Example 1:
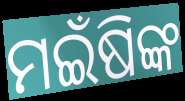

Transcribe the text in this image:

ମଇଁଷିଙ୍କ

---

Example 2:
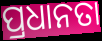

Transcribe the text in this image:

ପ୍ରଧାନତା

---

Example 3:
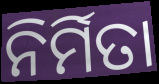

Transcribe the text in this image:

ନିର୍ମିତା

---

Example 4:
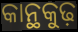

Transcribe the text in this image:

କାନ୍ଥକୁଢ଼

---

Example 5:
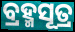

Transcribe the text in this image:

ବ୍ରହ୍ମସୂତ୍ର